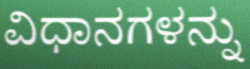
ವಿಧಾನಗಳನ್ನು